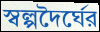
স্বল্পদৈর্ঘের